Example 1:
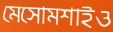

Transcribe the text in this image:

মেসোমশাইও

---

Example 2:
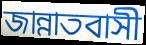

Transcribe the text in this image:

জান্নাতবাসী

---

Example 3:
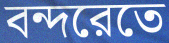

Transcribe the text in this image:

বন্দরেতে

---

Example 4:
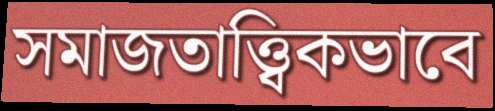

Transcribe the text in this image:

সমাজতাত্ত্বিকভাবে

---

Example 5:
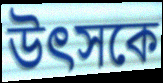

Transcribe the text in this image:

উৎসকে